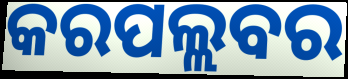
କରପଲ୍ଲବର